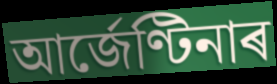
আৰ্জেণ্টিনাৰ